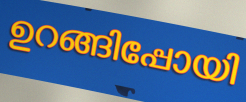
ഉറങ്ങിപ്പോയി